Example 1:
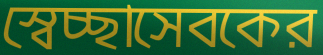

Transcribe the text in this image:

স্বেচ্ছাসেবকের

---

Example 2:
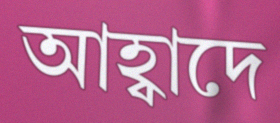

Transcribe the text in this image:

আহ্বাদে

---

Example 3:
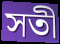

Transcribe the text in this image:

সতী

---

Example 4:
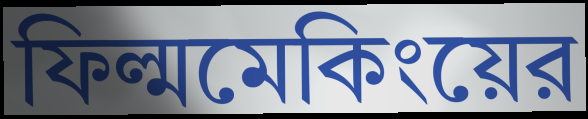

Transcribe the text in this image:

ফিল্মমেকিংয়ের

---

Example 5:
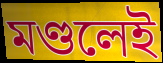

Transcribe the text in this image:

মণ্ডলেই